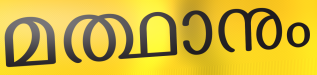
മത്ഥാനും